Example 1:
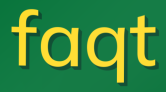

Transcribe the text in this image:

faqt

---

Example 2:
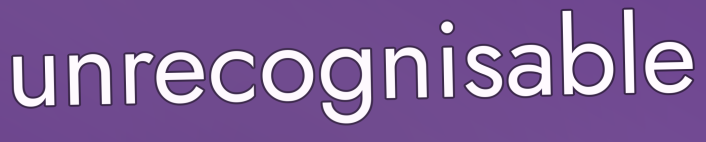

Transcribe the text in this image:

unrecognisable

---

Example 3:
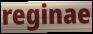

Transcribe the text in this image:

reginae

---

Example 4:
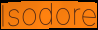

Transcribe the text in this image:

Isodore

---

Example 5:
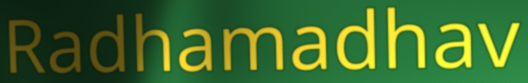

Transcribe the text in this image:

Radhamadhav